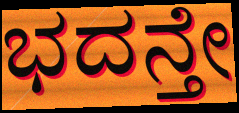
ಭದನ್ತೇ